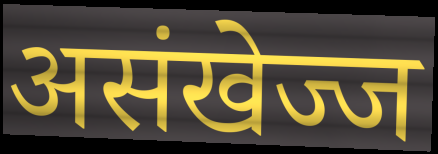
असंखेज्ज